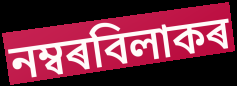
নম্বৰবিলাকৰ